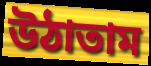
উঠাতাম